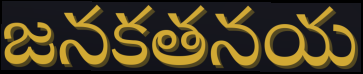
జనకతనయ